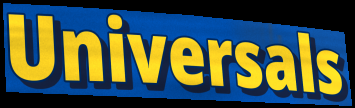
Universals